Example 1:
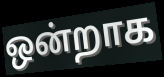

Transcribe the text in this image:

ஒன்றாக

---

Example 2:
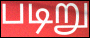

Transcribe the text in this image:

படிறு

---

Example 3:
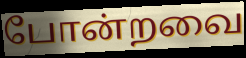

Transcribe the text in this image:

போன்றவை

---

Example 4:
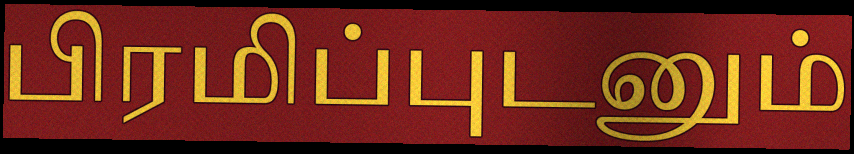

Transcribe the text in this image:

பிரமிப்புடனும்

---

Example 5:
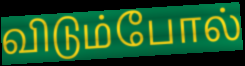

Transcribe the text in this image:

விடும்போல்